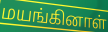
மயங்கினாள்